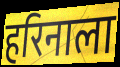
हरिनाला